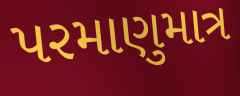
પરમાણુમાત્ર